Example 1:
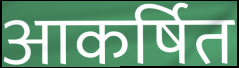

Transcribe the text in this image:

आकर्षित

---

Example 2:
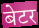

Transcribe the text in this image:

बेटर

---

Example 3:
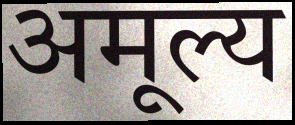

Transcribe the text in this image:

अमूल्‍य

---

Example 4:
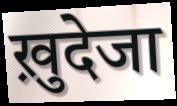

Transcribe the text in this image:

ख़ुदेजा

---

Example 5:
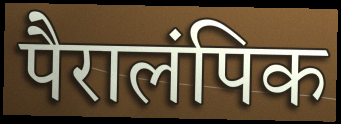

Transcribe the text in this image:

पैरालंपिक